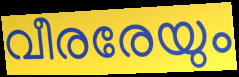
വീരരേയും